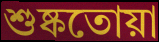
শুষ্কতোয়া